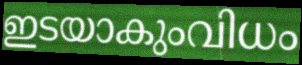
ഇടയാകുംവിധം